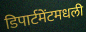
डिपार्टमेंटमधली